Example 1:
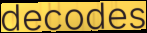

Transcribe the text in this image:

decodes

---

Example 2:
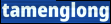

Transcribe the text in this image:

tamenglong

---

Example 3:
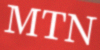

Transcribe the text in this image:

MTN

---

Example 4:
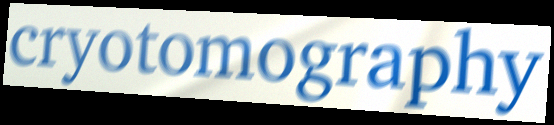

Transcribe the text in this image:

cryotomography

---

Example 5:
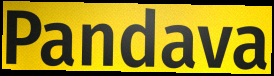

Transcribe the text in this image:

Pandava